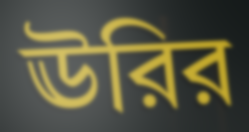
ঊরির